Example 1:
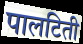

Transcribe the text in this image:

पालटिती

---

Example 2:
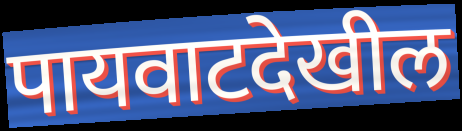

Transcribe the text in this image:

पायवाटदेखील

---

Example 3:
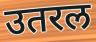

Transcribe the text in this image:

उतरल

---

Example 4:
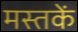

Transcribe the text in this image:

मस्तकें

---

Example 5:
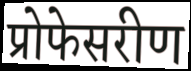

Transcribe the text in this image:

प्रोफेसरीण